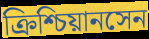
ক্রিশ্চিয়ানসেন